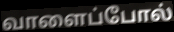
வாளைப்போல்